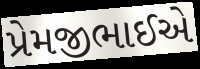
પ્રેમજીભાઈએ